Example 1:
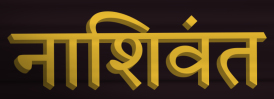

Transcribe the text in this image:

नाशिवंत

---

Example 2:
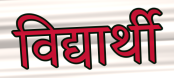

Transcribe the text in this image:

विद्यार्थी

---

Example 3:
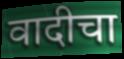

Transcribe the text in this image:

वादीचा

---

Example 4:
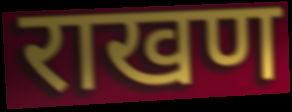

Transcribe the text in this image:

राखण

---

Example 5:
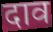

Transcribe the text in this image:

दाव